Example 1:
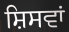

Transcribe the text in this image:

ਸ਼ਿਸਵਾਂ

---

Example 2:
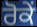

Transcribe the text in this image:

ਰੋਕੇਂ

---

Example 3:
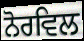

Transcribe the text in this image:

ਨੋਰਵਿਲ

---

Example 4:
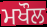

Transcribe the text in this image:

ਮਖੌਲ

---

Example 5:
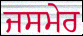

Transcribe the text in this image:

ਜਸਮੇਰ